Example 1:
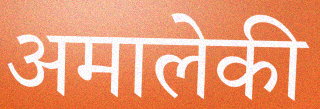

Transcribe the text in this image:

अमालेकी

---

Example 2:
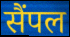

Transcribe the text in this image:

सैंपल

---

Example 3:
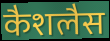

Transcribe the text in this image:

कैशलैस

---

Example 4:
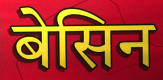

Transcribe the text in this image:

बेसिन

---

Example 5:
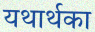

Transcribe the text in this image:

यथार्थका